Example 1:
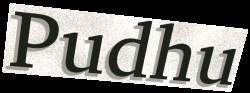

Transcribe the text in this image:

Pudhu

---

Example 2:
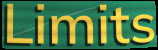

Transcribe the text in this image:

Limits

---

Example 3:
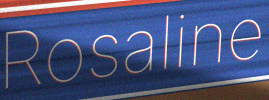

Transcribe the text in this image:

Rosaline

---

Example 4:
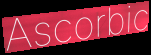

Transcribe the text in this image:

Ascorbic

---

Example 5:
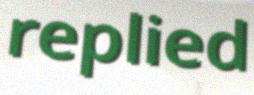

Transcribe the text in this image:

replied